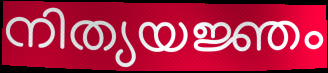
നിത്യയജ്ഞം